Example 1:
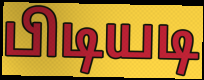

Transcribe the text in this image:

பிடியடி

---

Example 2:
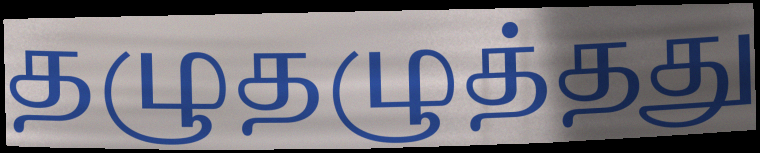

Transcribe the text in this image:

தழுதழுத்தது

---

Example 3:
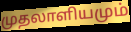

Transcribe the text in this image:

முதலாளியமும்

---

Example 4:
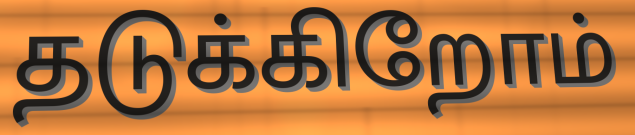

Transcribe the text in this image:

தடுக்கிறோம்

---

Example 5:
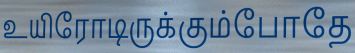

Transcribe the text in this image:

உயிரோடிருக்கும்போதே